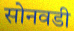
सोनवडी